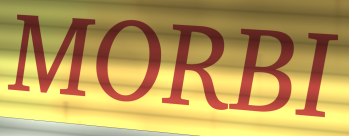
MORBI